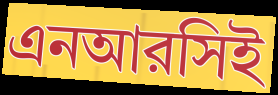
এনআরসিই